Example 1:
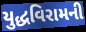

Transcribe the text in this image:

યુદ્ધવિરામની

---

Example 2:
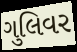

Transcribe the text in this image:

ગુલિવર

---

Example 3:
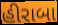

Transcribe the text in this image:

હીરાબા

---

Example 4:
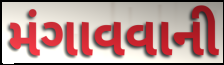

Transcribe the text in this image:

મંગાવવાની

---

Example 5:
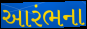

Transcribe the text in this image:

આરંભના